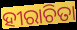
ହୀରାଚିତା